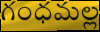
గంధమల్ల